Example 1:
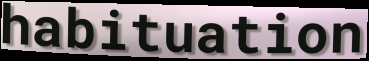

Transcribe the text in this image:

habituation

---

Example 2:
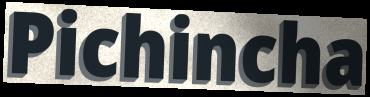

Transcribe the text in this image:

Pichincha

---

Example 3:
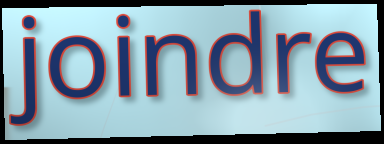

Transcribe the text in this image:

joindre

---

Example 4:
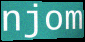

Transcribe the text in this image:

njom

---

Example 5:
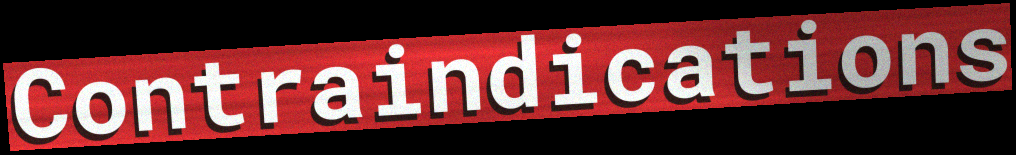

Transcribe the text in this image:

Contraindications